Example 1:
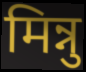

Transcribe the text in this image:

मिन्नु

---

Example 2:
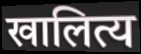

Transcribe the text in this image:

खालित्य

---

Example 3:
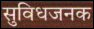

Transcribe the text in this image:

सुविधजनक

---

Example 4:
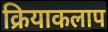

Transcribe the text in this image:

क्रियाकलाप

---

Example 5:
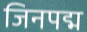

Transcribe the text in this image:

जिनपद्म